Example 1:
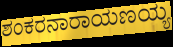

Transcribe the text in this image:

ಶಂಕರನಾರಾಯಣಯ್ಯ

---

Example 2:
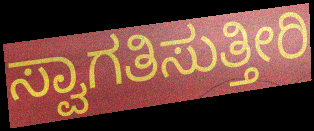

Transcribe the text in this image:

ಸ್ವಾಗತಿಸುತ್ತೀರಿ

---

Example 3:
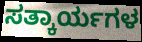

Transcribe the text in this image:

ಸತ್ಕಾರ್ಯಗಳ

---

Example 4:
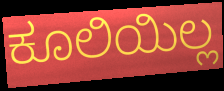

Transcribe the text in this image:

ಕೂಲಿಯಿಲ್ಲ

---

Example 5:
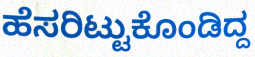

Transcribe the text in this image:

ಹೆಸರಿಟ್ಟುಕೊಂಡಿದ್ದ